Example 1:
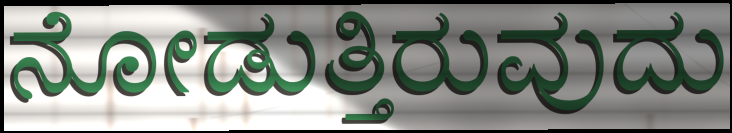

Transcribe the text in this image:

ನೋಡುತ್ತಿರುವುದು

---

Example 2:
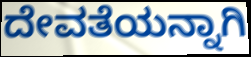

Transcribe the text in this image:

ದೇವತೆಯನ್ನಾಗಿ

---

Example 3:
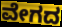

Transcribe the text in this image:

ವೇಗದ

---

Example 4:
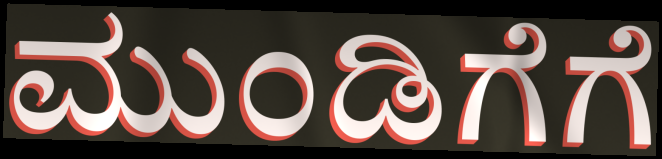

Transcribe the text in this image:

ಮುಂಡಿಗೆಗೆ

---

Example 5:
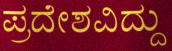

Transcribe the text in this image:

ಪ್ರದೇಶವಿದ್ದು